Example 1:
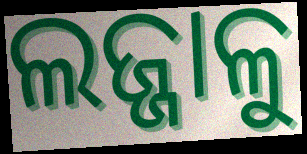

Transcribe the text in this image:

ଲଜ୍ଜାଳୁ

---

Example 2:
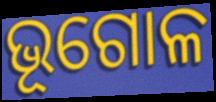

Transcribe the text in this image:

ଭୂଗୋଳ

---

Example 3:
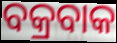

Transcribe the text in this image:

ବକ୍ରବାକ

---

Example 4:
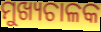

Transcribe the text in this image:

ମୁଖ୍ୟଚାଳକ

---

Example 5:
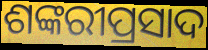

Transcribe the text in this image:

ଶଙ୍କରୀପ୍ରସାଦ